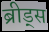
ब्रीड्स